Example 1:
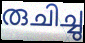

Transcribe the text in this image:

രുചിച്ചു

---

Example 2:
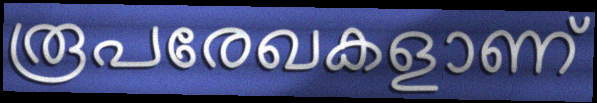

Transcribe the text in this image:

രൂപരേഖകളാണ്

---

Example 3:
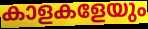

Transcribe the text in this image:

കാളകളേയും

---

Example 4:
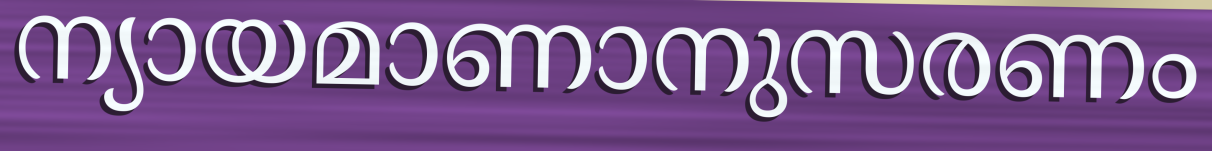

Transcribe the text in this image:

ന്യായമാണാനുസരണം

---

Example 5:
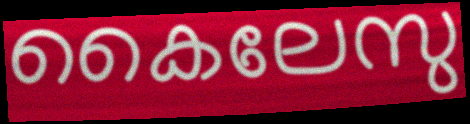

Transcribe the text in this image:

കൈലേസു